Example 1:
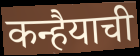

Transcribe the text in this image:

कन्हैयाची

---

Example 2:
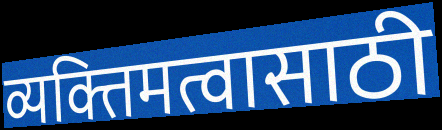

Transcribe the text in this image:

व्यक्तिमत्वासाठी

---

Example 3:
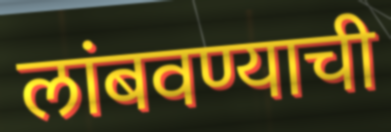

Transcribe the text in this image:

लांबवण्याची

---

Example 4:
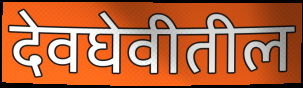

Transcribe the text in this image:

देवघेवीतील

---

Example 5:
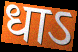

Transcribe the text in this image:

धाऽ